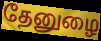
தேனுழை